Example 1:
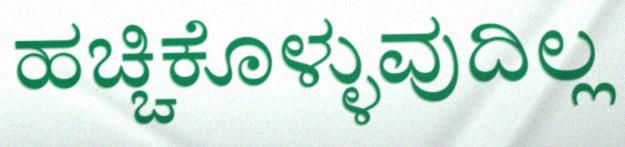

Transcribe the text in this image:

ಹಚ್ಚಿಕೊಳ್ಳುವುದಿಲ್ಲ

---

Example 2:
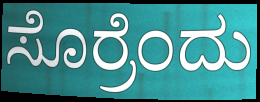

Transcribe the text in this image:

ಸೊರ್ರೆಂದು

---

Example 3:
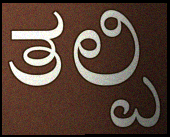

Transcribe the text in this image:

ತಲ್ಪಿ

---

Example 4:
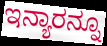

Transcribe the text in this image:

ಇನ್ಯಾರನ್ನೂ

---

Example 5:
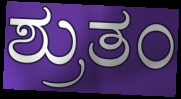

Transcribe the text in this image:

ಶ್ರುತಂ